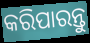
କରିପାରନ୍ତୁ